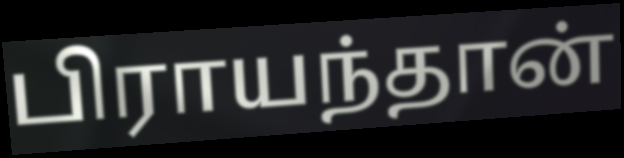
பிராயந்தான்